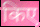
किए